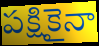
పక్షికైనా